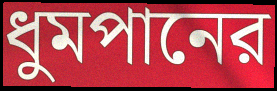
ধুমপানের